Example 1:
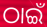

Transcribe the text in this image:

ଠାଇଁ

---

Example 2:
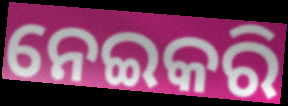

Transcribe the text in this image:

ନେଇକରି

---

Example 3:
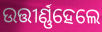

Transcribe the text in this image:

ଉତ୍ତୀର୍ଣ୍ଣହେଲେ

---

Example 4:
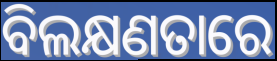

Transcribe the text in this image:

ବିଲକ୍ଷଣତାରେ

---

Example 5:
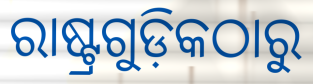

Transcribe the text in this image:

ରାଷ୍ଟ୍ରଗୁଡ଼ିକଠାରୁ